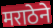
मराठेने